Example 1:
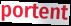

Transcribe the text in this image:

portent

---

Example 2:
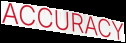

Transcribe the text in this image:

ACCURACY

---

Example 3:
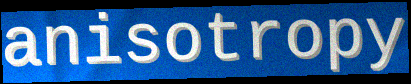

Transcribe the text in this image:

anisotropy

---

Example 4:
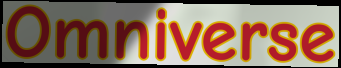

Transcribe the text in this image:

Omniverse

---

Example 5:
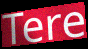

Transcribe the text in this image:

Tere